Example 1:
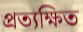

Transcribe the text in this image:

প্রত্যক্ষিত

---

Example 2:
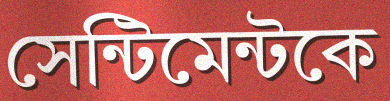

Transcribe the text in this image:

সেন্টিমেন্টকে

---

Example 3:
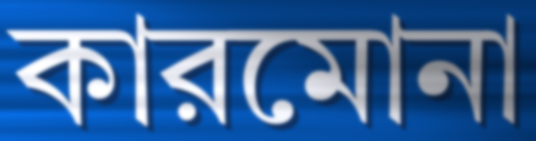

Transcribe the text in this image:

কারমোনা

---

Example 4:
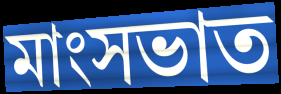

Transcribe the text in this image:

মাংসভাত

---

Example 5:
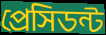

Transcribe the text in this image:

প্রেসিডন্ট